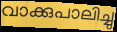
വാക്കുപാലിച്ചു